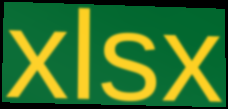
xlsx